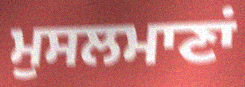
ਮੁਸਲਮਾਣਾਂ